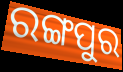
ରଙ୍ଗପୁର